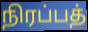
நிரப்பத்